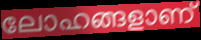
ലോഹങ്ങളാണ്